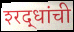
श्रद्धांची